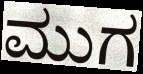
ಮುಗ